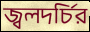
জ্বলদর্চির